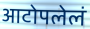
आटोपलेलं